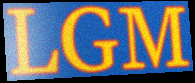
LGM